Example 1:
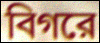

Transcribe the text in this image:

বিগরে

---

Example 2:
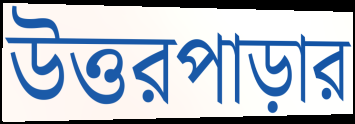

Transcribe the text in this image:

উত্তরপাড়ার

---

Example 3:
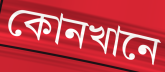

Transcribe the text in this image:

কোনখানে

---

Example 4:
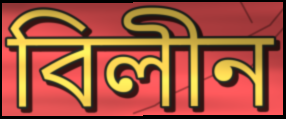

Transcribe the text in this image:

বিলীন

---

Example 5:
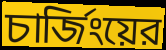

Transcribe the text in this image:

চার্জিংয়ের